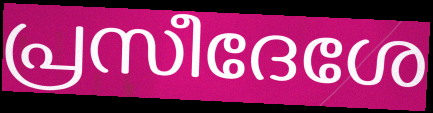
പ്രസീദേശേ